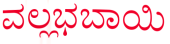
ವಲ್ಲಭಬಾಯಿ